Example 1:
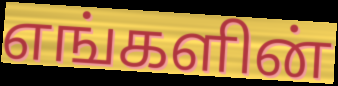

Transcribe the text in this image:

எங்களின்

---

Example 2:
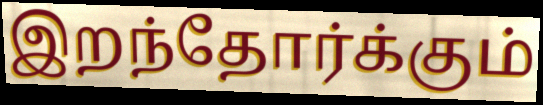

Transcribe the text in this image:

இறந்தோர்க்கும்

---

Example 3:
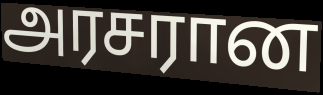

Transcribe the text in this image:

அரசரான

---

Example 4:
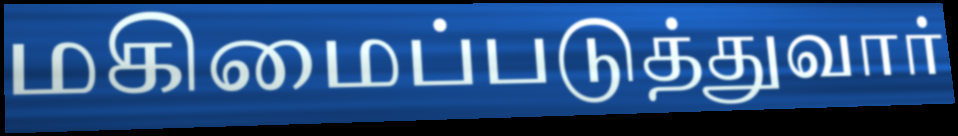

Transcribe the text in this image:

மகிமைப்படுத்துவார்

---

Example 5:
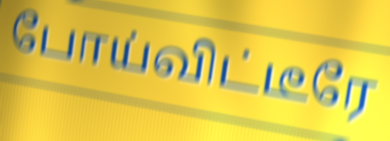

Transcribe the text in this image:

போய்விட்டீரே